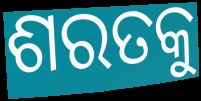
ଶରତକୁ